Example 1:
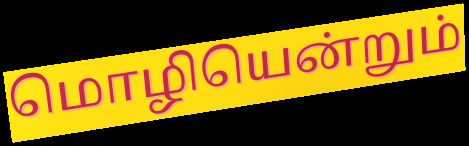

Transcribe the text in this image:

மொழியென்றும்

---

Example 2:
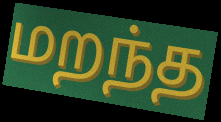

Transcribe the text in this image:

மறந்த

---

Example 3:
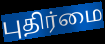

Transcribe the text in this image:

புதிர்மை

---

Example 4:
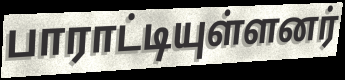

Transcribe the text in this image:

பாராட்டியுள்ளனர்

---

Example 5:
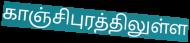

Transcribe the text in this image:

காஞ்சிபுரத்திலுள்ள